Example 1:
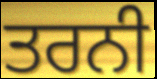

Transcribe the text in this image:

ਤਰਨੀ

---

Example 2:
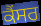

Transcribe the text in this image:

ਕੈੰਸਰ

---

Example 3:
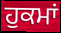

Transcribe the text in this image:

ਹੁਕਮਾਂ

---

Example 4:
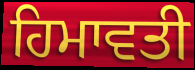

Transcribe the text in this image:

ਹਿਮਾਵਤੀ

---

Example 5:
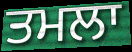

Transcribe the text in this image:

ਤਮਲਾ